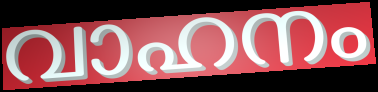
വാഹനം